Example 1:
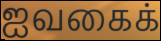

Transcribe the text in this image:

ஐவகைக்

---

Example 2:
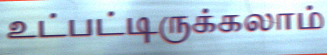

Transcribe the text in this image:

உட்பட்டிருக்கலாம்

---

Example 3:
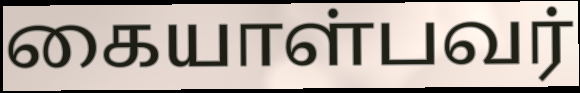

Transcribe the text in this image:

கையாள்பவர்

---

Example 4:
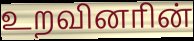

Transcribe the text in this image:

உறவினரின்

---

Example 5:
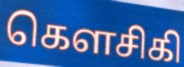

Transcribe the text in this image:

கௌசிகி